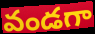
వండగా